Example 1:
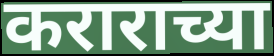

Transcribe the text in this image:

कराराच्या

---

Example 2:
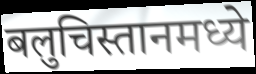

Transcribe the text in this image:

बलुचिस्तानमध्ये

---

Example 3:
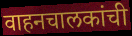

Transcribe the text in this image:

वाहनचालकांची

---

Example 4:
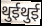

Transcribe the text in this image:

थुईथुई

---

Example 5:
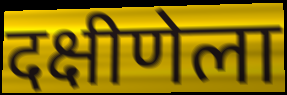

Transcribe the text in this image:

दक्षीणेला